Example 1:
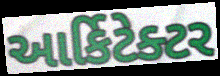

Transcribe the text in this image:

આર્કિટેક્ટર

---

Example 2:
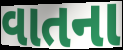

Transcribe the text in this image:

વાતના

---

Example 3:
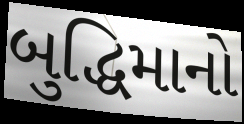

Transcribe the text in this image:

બુદ્ધિમાનો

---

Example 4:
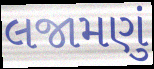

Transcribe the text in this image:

લજામણું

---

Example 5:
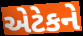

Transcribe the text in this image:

એટેકને